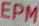
EPM